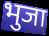
भुजा